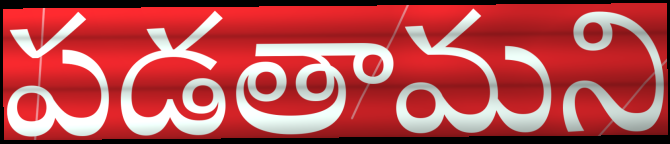
పడతామని